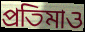
প্রতিমাও